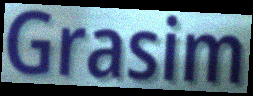
Grasim